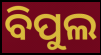
ବିପୁଲ